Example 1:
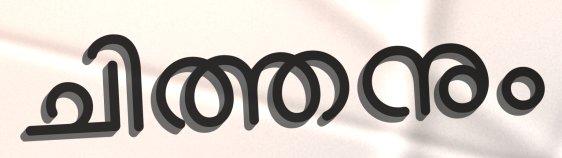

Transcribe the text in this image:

ചിത്തനും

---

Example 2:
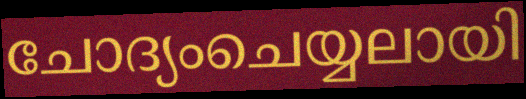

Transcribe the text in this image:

ചോദ്യംചെയ്യലായി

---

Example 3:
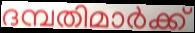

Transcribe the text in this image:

ദമ്പതിമാർക്ക്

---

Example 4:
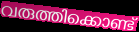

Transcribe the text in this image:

വരുത്തിക്കൊണ്ട്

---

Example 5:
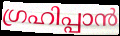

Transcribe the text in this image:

ഗ്രഹിപ്പാൻ